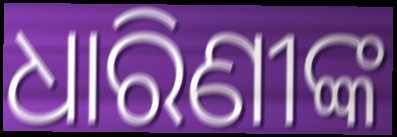
ଧାରିଣୀଙ୍କ